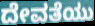
ದೇವತೆಯು